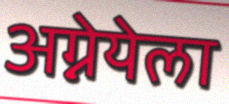
अग्नेयेला